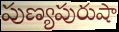
పుణ్యపురుషా